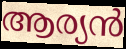
ആര്യൻ